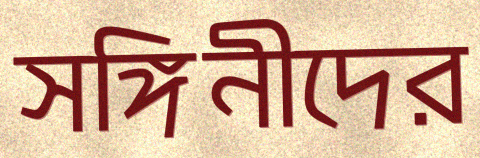
সঙ্গিনীদের